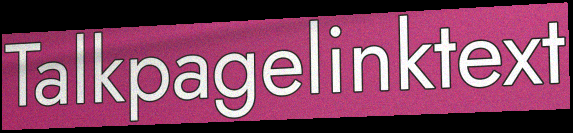
Talkpagelinktext